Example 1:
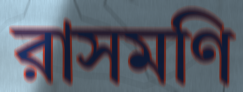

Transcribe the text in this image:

রাসমণি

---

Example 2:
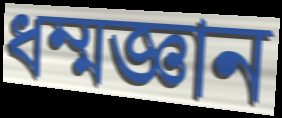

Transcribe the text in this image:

ধম্মজ্ঞান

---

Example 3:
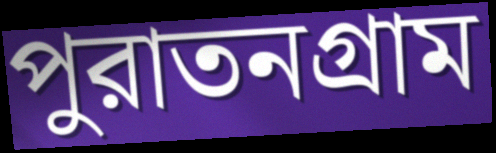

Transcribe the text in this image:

পুরাতনগ্রাম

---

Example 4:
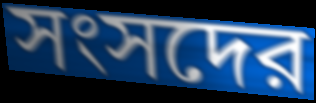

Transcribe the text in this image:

সংসদের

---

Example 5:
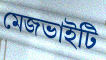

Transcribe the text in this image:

মেজভাইটি